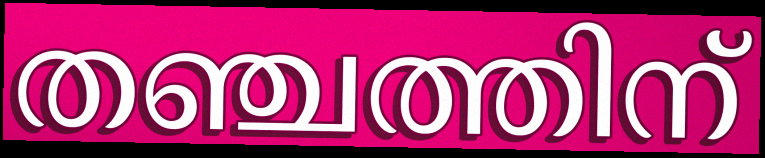
തഞ്ചത്തിന്